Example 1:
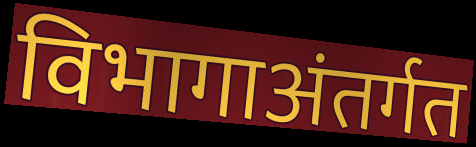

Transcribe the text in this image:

विभागाअंतर्गत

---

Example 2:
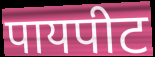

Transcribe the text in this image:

पायपीट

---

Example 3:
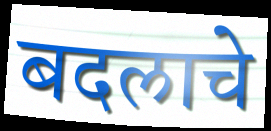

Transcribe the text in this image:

बदलाचे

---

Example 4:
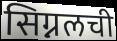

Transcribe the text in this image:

सिग्नलची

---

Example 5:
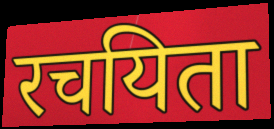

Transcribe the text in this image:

रचयिता